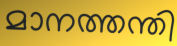
മാനത്തന്തി